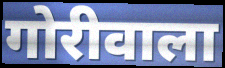
गोरीवाला